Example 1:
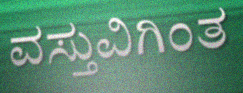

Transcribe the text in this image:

ವಸ್ತುವಿಗಿಂತ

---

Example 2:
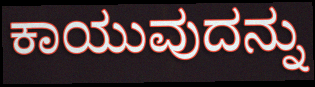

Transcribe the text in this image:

ಕಾಯುವುದನ್ನು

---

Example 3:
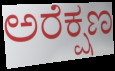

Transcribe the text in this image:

ಅರೆಕ್ಷಣ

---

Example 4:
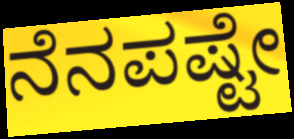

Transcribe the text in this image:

ನೆನಪಷ್ಟೇ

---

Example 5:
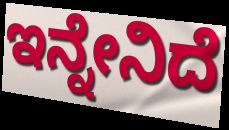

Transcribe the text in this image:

ಇನ್ನೇನಿದೆ